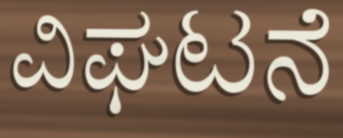
ವಿಘಟನೆ